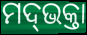
ମଦ୍‌ଭକ୍ତା